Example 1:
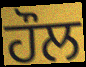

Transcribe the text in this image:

ਹੌਲ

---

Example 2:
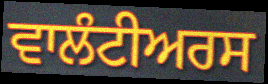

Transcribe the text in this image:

ਵਾਲੰਟੀਅਰਸ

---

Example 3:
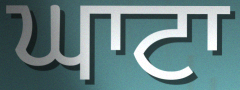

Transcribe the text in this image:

ਘਾਟਾ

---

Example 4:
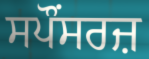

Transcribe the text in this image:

ਸਪੌਂਸਰਜ਼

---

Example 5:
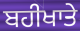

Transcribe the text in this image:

ਬਹੀਖਾਤੇ